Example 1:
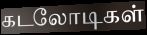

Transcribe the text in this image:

கடலோடிகள்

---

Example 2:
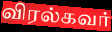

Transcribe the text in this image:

விரல்கவர்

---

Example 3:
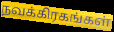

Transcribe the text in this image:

நவக்கிரகங்கள்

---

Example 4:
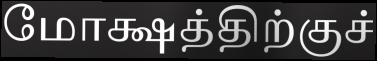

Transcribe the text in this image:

மோக்ஷத்திற்குச்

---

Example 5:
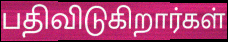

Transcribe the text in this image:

பதிவிடுகிறார்கள்